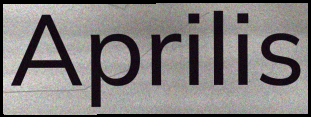
Aprilis